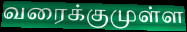
வரைக்குமுள்ள